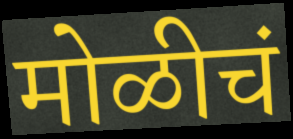
मोळीचं